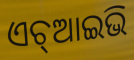
ଏଚ୍ଆଇଭି